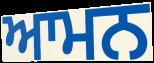
ਆਮਨ